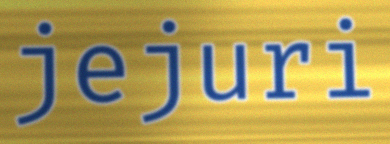
jejuri